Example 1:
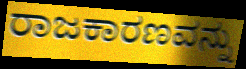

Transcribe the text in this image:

ರಾಜಕಾರಣವನ್ನು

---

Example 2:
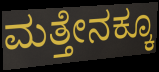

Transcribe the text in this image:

ಮತ್ತೇನಕ್ಕೂ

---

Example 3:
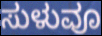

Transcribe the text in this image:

ಸುಳುವೂ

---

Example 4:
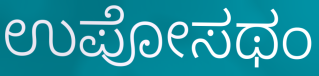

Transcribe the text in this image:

ಉಪೋಸಥಂ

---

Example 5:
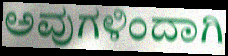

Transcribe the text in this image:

ಅವುಗಳಿಂದಾಗಿ